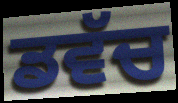
ਡਵੱਚ